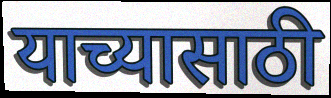
याच्यासाठी